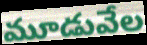
మూడువేల